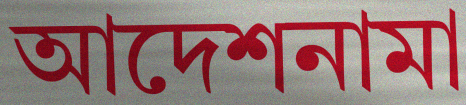
আদেশনামা